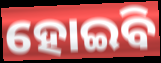
ହୋଇିବ